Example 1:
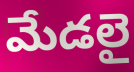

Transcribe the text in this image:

మేడలై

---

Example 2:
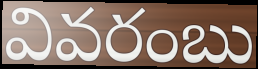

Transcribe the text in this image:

వివరంబు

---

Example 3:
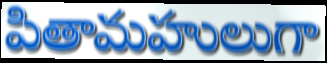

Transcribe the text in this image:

పితామహులుగా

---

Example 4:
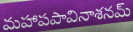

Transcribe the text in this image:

మహాపపావినాశనమ్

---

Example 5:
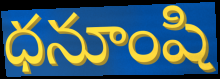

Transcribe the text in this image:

ధనూంషి